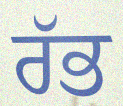
ਰੱਭ